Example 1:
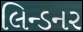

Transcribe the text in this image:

લિન્ડનર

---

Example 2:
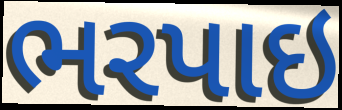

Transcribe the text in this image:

ભરપાઇ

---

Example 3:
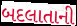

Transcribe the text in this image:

બદલાતાની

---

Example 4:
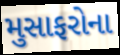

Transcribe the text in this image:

મુસાફરોના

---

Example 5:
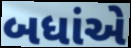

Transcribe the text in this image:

બધાંએ